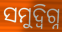
ସମୁଦ୍ବିଗ୍ନ